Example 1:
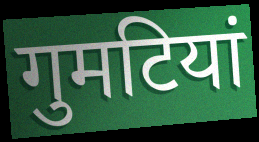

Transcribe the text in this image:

गुमटियां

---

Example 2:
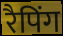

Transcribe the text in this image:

रैपिंग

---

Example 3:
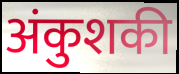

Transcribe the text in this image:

अंकुशकी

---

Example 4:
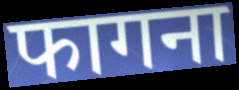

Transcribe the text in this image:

फागना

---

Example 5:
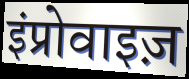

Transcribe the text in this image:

इंप्रोवाइज़